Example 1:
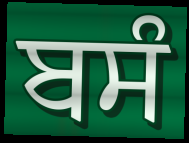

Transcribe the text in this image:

ਬਸੰ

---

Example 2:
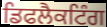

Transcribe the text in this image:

ਡਿਫਲੈਕਟਿੰਗ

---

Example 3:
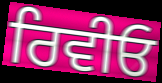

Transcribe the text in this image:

ਰਿਵੀਓ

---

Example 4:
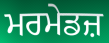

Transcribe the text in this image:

ਮਰਮੇਡਜ਼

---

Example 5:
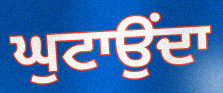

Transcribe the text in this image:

ਘੁਟਾਉਂਦਾ